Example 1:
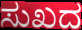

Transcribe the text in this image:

ಸುಖದ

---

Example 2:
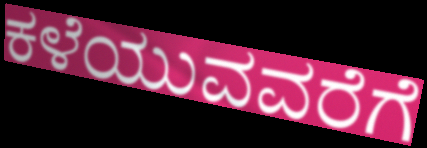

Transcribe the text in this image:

ಕಳೆಯುವವರೆಗೆ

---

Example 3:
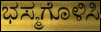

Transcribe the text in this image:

ಭಸ್ಮಗೊಳಿಸಿ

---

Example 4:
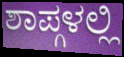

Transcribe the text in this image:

ಶಾಪ್ಗಳಲ್ಲಿ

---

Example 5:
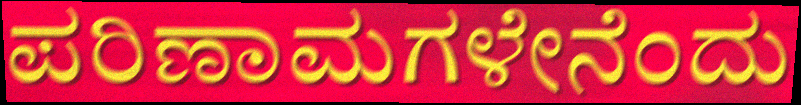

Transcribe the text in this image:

ಪರಿಣಾಮಗಳೇನೆಂದು